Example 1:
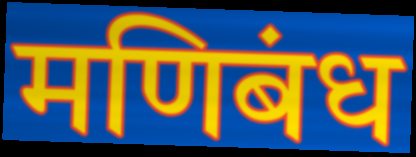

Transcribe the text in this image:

मणिबंध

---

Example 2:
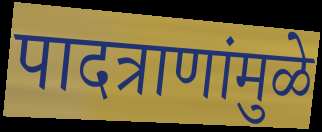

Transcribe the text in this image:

पादत्राणांमुळे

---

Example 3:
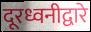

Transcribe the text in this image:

दूरध्वनीद्वारे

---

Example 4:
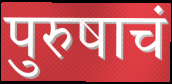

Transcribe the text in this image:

पुरुषाचं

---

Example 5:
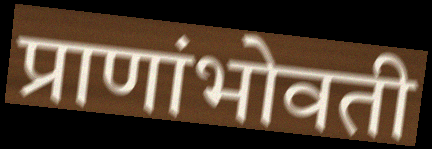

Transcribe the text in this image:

प्राणांभोवती